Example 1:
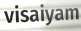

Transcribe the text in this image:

visaiyam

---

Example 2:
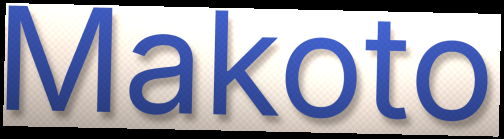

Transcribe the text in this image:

Makoto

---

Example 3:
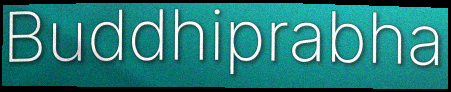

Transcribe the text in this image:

Buddhiprabha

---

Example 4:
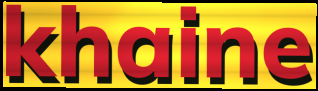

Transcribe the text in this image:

khaine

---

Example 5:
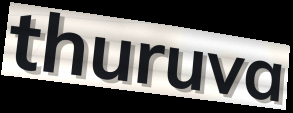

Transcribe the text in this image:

thuruva